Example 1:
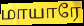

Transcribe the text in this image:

மாயாரே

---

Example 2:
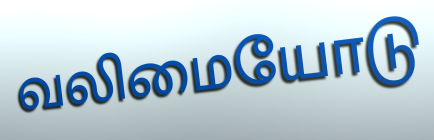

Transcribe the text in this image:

வலிமையோடு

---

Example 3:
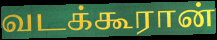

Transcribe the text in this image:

வடக்கூரான்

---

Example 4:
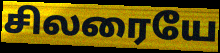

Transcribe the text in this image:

சிலரையே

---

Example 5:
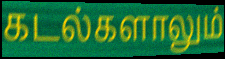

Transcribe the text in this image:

கடல்களாலும்